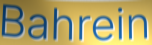
Bahrein